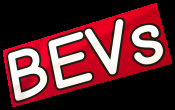
BEVs